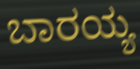
ಬಾರಯ್ಯ